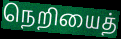
நெறியைத்